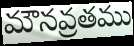
మౌనవ్రతము